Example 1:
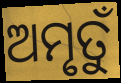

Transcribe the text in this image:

ଅମୃତୁଁ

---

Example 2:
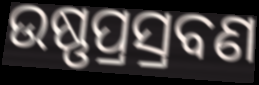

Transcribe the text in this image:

ଉଷ୍ଣପ୍ରସ୍ରବଣ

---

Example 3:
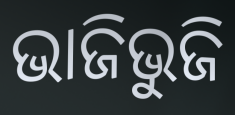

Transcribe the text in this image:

ଭାଜିଭୁଜି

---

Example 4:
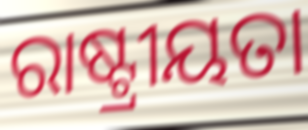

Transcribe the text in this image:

ରାଷ୍ଟ୍ରୀୟତା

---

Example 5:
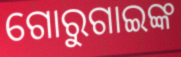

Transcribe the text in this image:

ଗୋରୁଗାଇଙ୍କ